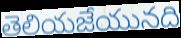
తెలియజేయునది